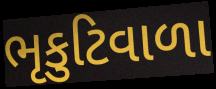
ભૃકુટિવાળા